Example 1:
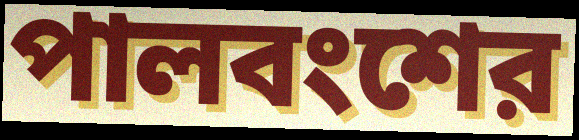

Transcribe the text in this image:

পালবংশের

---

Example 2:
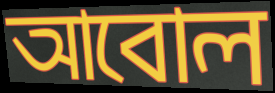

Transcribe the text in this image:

আবোল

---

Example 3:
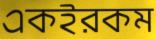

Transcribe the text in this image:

একইরকম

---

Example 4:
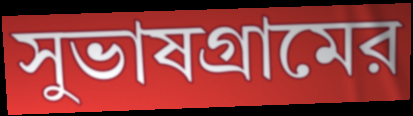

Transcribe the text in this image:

সুভাষগ্রামের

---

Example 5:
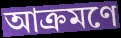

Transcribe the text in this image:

আক্রমণে